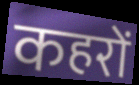
कहरों